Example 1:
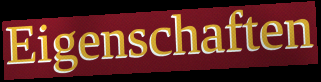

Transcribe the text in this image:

Eigenschaften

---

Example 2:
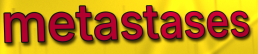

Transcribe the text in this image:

metastases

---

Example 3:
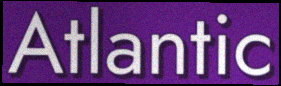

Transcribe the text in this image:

Atlantic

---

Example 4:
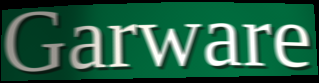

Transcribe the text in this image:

Garware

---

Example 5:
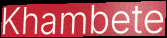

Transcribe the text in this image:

Khambete